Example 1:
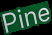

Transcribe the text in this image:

Pine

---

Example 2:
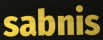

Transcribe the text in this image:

sabnis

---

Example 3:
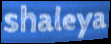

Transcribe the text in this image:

shaleya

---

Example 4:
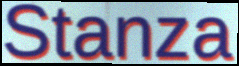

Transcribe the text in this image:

Stanza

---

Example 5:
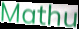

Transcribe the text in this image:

Mathu